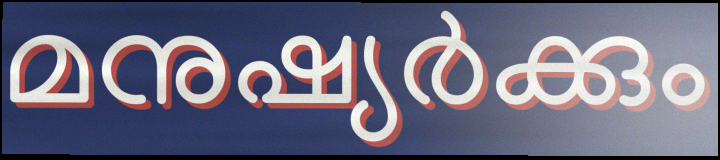
മനുഷ്യർക്കും